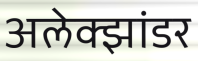
अलेक्झांडर